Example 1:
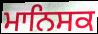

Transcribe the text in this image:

ਮਾਨਿਸਕ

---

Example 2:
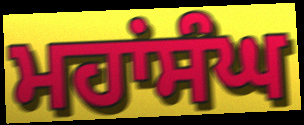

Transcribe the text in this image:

ਮਹਾਂਸੰਘ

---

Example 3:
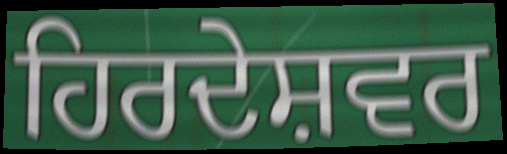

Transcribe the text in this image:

ਹਿਰਦੇਸ਼ਵਰ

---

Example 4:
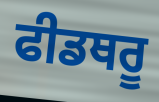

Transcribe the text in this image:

ਫੀਡਥਰੂ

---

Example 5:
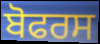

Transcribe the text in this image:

ਬੋਫਰਸ